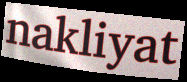
nakliyat